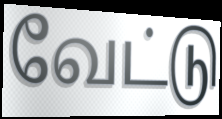
வேட்டு